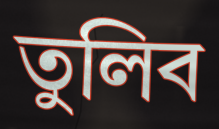
তুলিব